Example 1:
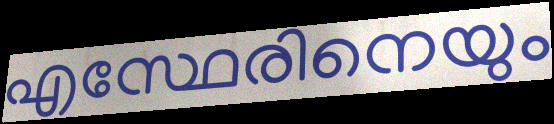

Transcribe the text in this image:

എസ്ഥേരിനെയും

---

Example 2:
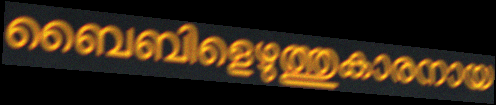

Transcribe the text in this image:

ബൈബിളെഴുത്തുകാരനായ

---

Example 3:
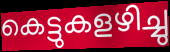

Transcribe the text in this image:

കെട്ടുകളഴിച്ചു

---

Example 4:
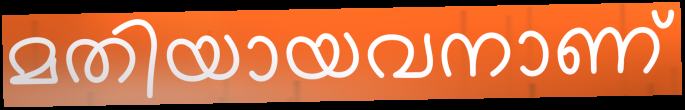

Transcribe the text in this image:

മതിയായവനാണ്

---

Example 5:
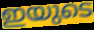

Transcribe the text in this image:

ഇയുടെ